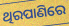
ଥିରପାଣିରେ